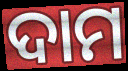
ଦାମ